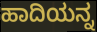
ಹಾದಿಯನ್ನ